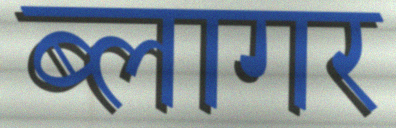
ब्लागर